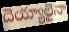
దెయ్యాలైనా